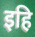
इहि